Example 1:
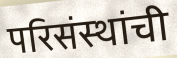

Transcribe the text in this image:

परिसंस्थांची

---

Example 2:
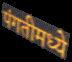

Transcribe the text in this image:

पंगतीमध्ये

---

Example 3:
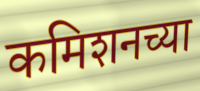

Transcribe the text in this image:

कमिशनच्या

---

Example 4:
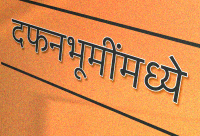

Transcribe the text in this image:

दफनभूमींमध्ये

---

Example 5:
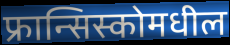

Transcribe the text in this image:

फ्रान्सिस्कोमधील